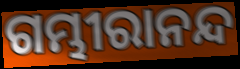
ଗମ୍ଭୀରାନନ୍ଦ